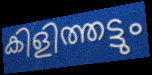
കിളിത്തട്ടും